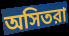
অসিতরা